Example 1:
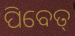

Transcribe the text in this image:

ପିବେତ୍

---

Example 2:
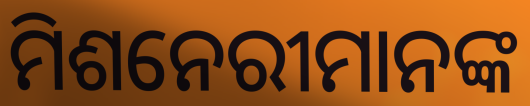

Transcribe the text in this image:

ମିଶନେରୀମାନଙ୍କ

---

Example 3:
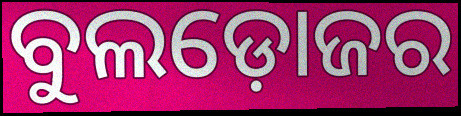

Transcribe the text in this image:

ବୁଲଡ଼ୋଜର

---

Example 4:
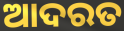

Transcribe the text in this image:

ଆଦରତ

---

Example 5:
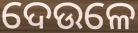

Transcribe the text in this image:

ଦେଉଳେ